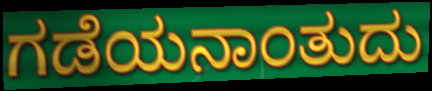
ಗಡೆಯನಾಂತುದು